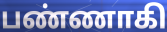
பண்ணாகி